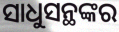
ସାଧୁସନ୍ଥଙ୍କର